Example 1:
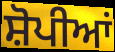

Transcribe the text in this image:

ਸ਼ੋਪੀਆਂ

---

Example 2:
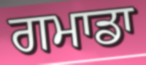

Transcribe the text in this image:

ਗਮਾਡਾ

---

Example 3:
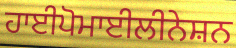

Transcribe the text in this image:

ਹਾਈਪੋਮਾਈਲੀਨੇਸ਼ਨ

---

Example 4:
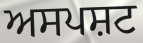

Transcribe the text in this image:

ਅਸਪਸ਼ਟ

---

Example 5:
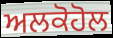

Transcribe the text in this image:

ਅਲਕੋਹੋਲ